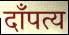
दाँपत्य